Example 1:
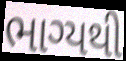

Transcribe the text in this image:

ભાગ્યથી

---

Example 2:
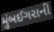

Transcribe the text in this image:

મુંબઈગરાની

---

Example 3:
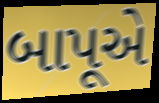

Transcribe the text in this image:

બાપૂએ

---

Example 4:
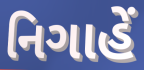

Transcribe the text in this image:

નિગાહેં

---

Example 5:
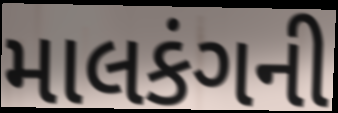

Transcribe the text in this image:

માલકંગની